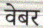
वेबर